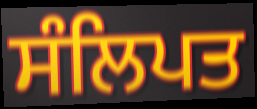
ਸੰਲਿਪਤ